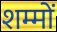
शम्मों